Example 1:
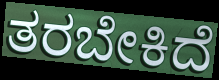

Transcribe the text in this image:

ತರಬೇಕಿದೆ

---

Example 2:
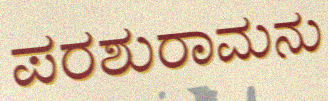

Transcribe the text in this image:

ಪರಶುರಾಮನು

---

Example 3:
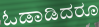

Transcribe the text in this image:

ಓಡಾಡಿದರೂ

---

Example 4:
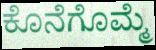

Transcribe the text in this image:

ಕೊನೆಗೊಮ್ಮೆ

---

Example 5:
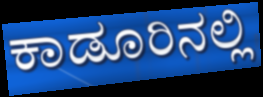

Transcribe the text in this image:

ಕಾಡೂರಿನಲ್ಲಿ